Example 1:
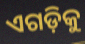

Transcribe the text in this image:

ଏଗଡ଼ିକୁ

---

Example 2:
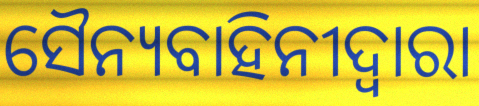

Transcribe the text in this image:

ସୈନ୍ୟବାହିନୀଦ୍ୱାରା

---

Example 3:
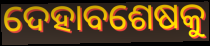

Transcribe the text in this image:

ଦେହାବଶେଷକୁ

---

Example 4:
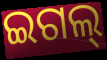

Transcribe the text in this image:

ଇଗଲ୍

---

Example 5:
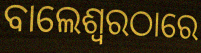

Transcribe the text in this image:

ବାଲେଶ୍ଵରଠାରେ